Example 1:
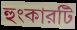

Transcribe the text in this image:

হুংকারটি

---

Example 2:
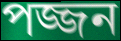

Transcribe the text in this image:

পজ্জন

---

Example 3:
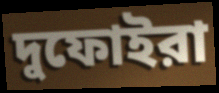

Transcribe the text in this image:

দুফোইরা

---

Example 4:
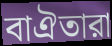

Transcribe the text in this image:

বাঐতারা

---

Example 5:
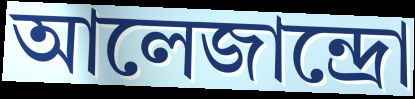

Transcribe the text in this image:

আলেজান্দ্রো